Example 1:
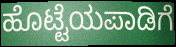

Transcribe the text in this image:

ಹೊಟ್ಟೆಯಪಾಡಿಗೆ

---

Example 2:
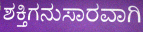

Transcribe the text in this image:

ಶಕ್ತಿಗನುಸಾರವಾಗಿ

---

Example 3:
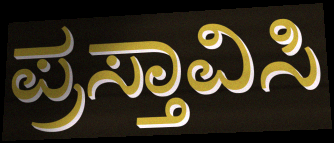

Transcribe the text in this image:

ಪ್ರಸ್ತಾವಿಸಿ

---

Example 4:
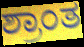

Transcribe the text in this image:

ಶ್ರಾಂತ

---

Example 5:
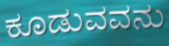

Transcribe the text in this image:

ಕೂಡುವವನು